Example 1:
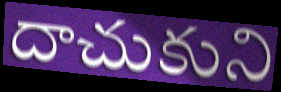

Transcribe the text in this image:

దాచుకుని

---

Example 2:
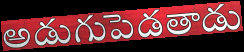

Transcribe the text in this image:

అడుగుపెడతాడు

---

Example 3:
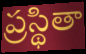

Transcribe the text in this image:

ప్రస్థితా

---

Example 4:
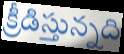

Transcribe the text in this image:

క్రీడిస్తున్నది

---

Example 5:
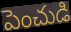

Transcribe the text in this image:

పెంచుడి